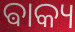
ଵାକ୍ୟ